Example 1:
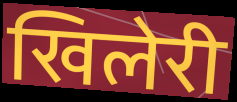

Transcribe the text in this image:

खिलेरी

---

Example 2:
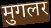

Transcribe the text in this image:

मुगलर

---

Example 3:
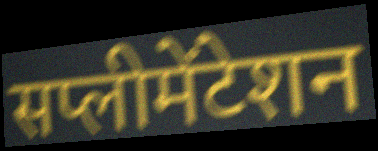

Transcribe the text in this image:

सप्लीमेंटेशन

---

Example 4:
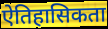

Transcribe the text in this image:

ऐतिहासिकता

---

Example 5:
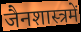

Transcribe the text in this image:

जैनशास्त्रमें